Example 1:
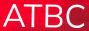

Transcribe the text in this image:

ATBC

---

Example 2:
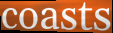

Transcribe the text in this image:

coasts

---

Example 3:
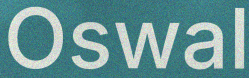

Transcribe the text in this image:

Oswal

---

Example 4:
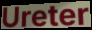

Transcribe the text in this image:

Ureter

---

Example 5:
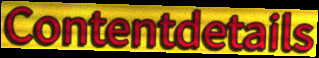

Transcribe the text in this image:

Contentdetails